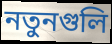
নতুনগুলি